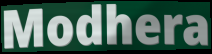
Modhera